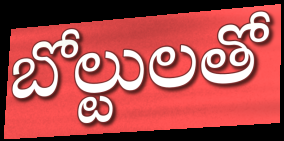
బోల్టులతో